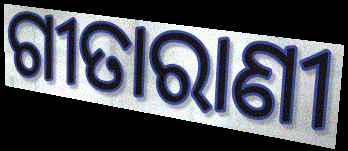
ଗୀତାରାଣୀ